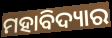
ମହାବିଦ୍ୟାର